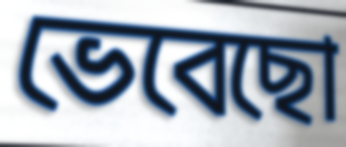
ভেবেছো